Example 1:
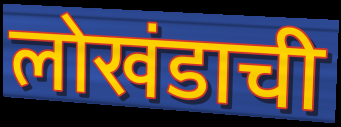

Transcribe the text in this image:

लोखंडाची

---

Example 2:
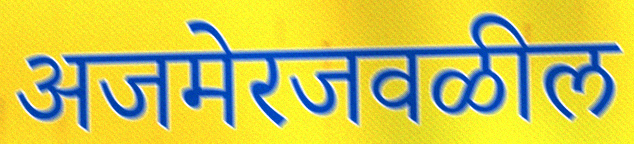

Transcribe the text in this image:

अजमेरजवळील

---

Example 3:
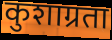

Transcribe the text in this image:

कुशाग्रता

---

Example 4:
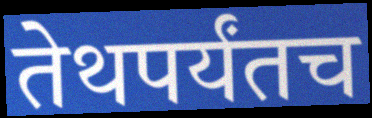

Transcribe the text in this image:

तेथपर्यंतच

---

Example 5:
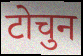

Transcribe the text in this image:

टोचुन